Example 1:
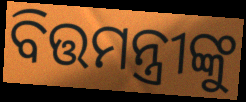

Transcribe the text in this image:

ବିତ୍ତମନ୍ତ୍ରୀଙ୍କୁ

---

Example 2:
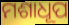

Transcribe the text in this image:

ମଶାଧୂପ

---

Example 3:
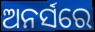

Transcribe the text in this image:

ଅନର୍ସରେ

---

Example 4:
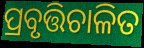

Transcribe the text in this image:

ପ୍ରବୃତ୍ତିଚାଳିତ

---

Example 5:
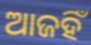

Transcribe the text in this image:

ଆଜହିଁ